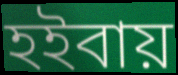
হইবায়